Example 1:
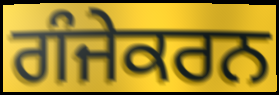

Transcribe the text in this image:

ਗੰਜੇਕਰਨ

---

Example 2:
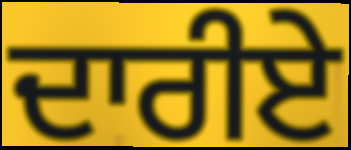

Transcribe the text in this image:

ਦਾਰੀਏ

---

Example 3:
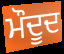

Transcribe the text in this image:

ਮੌਦੂਦ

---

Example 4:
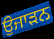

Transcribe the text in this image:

ਉਜਾੜਨ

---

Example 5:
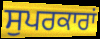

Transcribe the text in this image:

ਸੁਪਰਕਾਰਾਂ